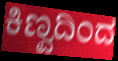
ಕಿಣ್ವದಿಂದ